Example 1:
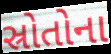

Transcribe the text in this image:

સ્રોતોના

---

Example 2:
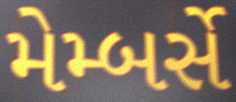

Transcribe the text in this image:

મેમ્બર્સે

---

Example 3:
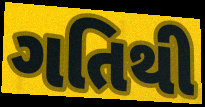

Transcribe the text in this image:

ગતિથી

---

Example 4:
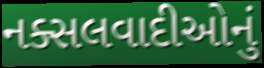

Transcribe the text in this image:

નક્સલવાદીઓનું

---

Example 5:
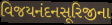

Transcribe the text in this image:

વિજયનંદનસૂરિજીના